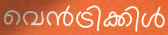
വെൻട്രിക്കിൾ